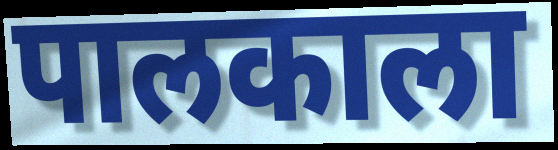
पालकाला